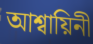
আশ্বায়িনী